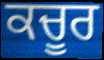
ਕਚੂਰ